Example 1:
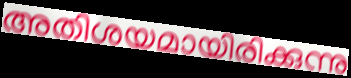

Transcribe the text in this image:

അതിശയമായിരിക്കുന്നു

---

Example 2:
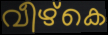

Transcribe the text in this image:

വീഴ്കെ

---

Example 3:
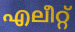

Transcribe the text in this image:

എലീറ്റ്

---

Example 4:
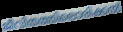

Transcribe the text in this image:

ജീവിതത്തിലൊരിക്കൽ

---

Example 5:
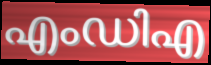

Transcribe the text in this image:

എംഡിഎ